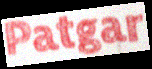
Patgar